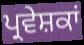
ਪ੍ਰਵੇਸ਼ਕਾਂ